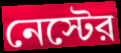
নেস্টের